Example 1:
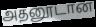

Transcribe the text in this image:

அதனூடான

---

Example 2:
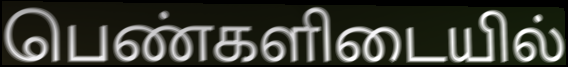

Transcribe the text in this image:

பெண்களிடையில்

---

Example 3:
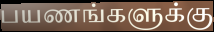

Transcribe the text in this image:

பயணங்களுக்கு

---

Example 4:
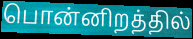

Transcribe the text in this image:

பொன்னிறத்தில்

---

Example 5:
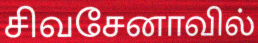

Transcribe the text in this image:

சிவசேனாவில்